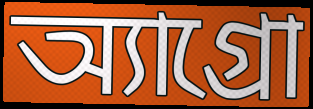
অ্যাগ্রো